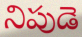
నిపుడె